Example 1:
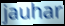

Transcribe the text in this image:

jauhar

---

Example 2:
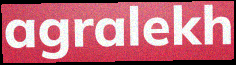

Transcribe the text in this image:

agralekh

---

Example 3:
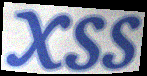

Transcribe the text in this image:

xss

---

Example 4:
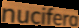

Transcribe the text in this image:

nucifera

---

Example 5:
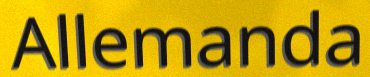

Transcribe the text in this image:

Allemanda